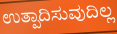
ಉತ್ಪಾದಿಸುವುದಿಲ್ಲ